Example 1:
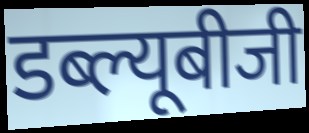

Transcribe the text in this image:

डब्ल्यूबीजी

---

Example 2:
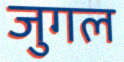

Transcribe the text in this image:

जुगल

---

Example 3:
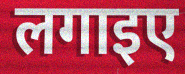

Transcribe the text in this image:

लगाइए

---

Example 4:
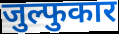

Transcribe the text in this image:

जुल्फुकार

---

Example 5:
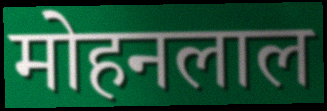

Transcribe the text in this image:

मोहनलाल